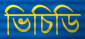
ভিচিডি